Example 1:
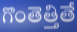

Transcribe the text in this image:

గొంతెత్తితే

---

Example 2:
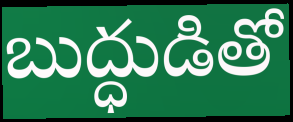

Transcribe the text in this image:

బుద్ధుడితో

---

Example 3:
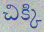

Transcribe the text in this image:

చిక్కి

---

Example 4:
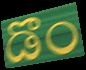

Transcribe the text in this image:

డొం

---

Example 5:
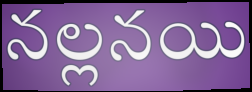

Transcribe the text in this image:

నల్లనయి